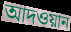
আদওয়ান